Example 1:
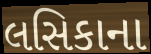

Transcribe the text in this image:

લસિકાના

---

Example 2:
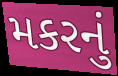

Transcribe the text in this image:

મકરનું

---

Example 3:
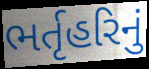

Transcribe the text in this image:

ભર્તૃહરિનું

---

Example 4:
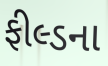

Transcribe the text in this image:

ફીલ્ડના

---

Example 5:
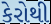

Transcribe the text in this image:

કેરોથી